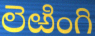
లెఱింగి